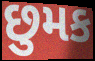
છુમક